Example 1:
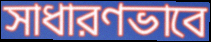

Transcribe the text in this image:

সাধারণভাবে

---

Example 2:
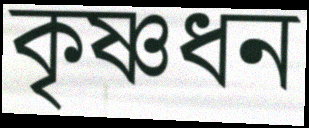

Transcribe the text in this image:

কৃষ্ণধন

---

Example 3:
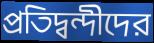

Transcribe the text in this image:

প্রতিদ্বন্দীদের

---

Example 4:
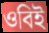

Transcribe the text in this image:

ওবিই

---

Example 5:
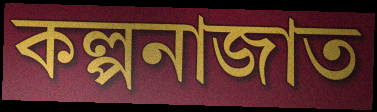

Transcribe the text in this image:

কল্পনাজাত